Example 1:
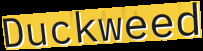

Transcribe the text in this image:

Duckweed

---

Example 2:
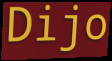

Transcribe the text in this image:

Dijo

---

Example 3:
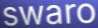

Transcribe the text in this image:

swaro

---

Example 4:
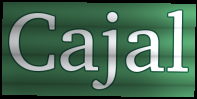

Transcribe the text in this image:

Cajal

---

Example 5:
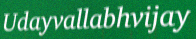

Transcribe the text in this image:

Udayvallabhvijay